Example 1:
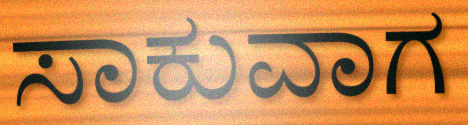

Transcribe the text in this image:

ಸಾಕುವಾಗ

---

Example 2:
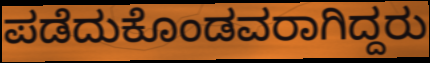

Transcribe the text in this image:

ಪಡೆದುಕೊಂಡವರಾಗಿದ್ದರು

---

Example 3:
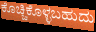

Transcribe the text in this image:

ಕೊಚ್ಚಿಕೊಳ್ಳಬಹುದು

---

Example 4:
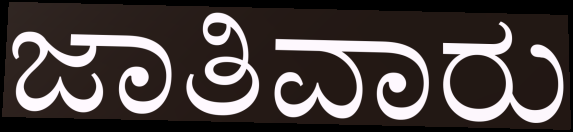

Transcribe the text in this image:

ಜಾತಿವಾರು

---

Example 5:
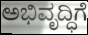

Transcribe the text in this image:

ಅಭಿವೃದ್ಧಿಗೆ